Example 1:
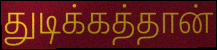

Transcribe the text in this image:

துடிக்கத்தான்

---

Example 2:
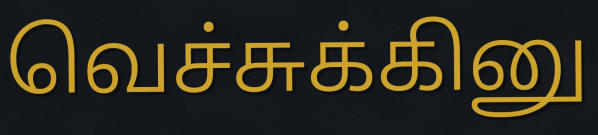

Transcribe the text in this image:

வெச்சுக்கினு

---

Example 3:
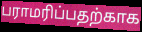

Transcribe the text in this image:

பராமரிப்பதற்காக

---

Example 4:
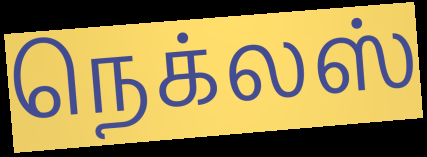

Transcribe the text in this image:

நெக்லஸ்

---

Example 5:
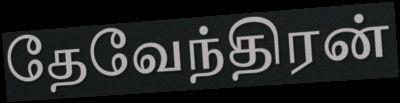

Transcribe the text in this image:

தேவேந்திரன்